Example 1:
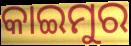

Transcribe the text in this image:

କାଇମୁର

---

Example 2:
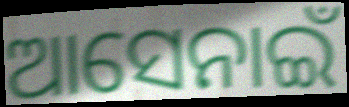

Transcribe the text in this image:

ଆସେନାଇଁ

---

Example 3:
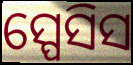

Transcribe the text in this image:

ସ୍ପେସିସ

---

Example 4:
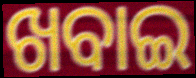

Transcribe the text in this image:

ଖବାଇ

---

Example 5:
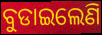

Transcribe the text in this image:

ବୁଡାଇଲେଣି